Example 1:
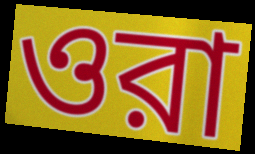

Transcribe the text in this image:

ওরা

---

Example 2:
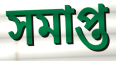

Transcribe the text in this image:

সমাপ্ত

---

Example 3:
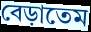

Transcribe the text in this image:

বেড়াতেম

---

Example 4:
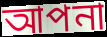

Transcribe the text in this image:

আপনা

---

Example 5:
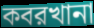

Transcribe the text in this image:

কবরখানা